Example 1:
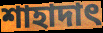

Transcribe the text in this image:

শাহাদাৎ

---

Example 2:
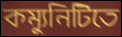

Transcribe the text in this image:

কম্যুনিটিতে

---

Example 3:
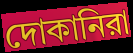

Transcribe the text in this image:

দোকানিরা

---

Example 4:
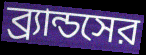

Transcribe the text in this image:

ব্র্যান্ডসের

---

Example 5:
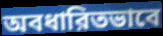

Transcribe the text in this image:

অবধারিতভাবে